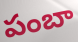
పంబా